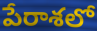
పేరాశలో